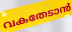
വകതേടാൻ